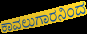
ಕಾವಲುಗಾರನಿಂದ